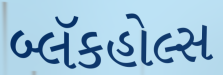
બ્લૅકહોલ્સ